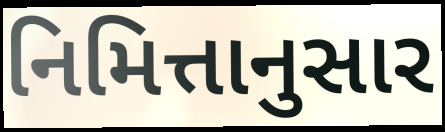
નિમિત્તાનુસાર